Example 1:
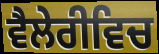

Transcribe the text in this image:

ਵੈਲੇਰੀਵਿਚ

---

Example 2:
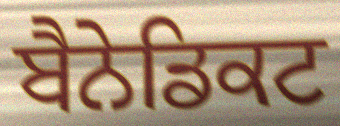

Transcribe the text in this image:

ਬੈਨੇਡਿਕਟ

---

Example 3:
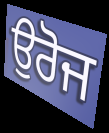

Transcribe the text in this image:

ਉਰੋਜ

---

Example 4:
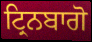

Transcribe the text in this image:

ਟ੍ਰਿਨਬਾਗੋ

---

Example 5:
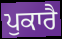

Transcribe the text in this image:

ਪੁਕਾਰੈ